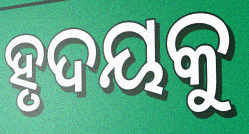
ହୃଦୟକୁ